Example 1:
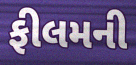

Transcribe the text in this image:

ફીલમની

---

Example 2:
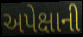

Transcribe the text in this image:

અપેક્ષાની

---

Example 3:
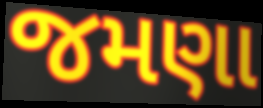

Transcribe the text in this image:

જમણા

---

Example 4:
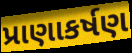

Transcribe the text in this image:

પ્રાણાકર્ષણ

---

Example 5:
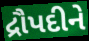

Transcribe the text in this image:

દ્રૌપદીને